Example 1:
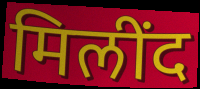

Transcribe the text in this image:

मिलींद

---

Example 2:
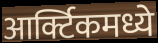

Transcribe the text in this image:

आर्क्टिकमध्ये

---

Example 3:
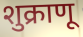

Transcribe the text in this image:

शुक्राणू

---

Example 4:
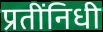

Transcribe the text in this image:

प्रतींनिधी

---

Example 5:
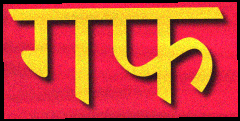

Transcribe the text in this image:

गफ